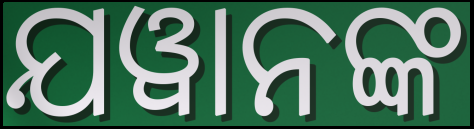
ଯୱାନଙ୍କ